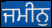
ਜਮੀਨੁ